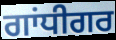
ਗਾਂਧੀਗਰ